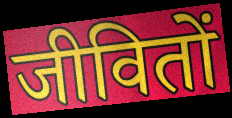
जीवितों